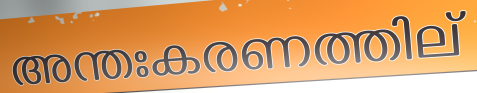
അന്തഃകരണത്തില്